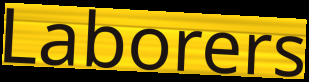
Laborers